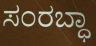
ಸಂರಬ್ಧಾ